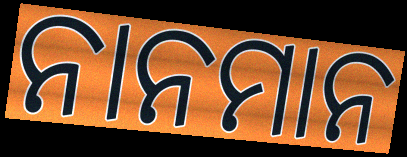
ନାନମାନ